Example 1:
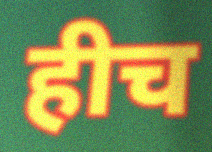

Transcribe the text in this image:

हीच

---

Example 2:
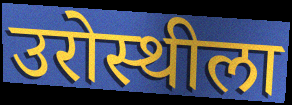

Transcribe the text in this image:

उरोस्थीला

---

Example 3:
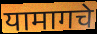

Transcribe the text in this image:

यामागचे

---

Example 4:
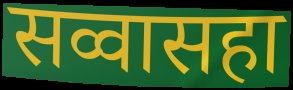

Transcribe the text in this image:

सव्वासहा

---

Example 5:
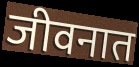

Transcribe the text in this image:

जीवनात